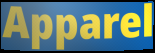
Apparel